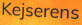
Kejserens